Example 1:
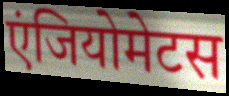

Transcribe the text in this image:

एंजियोमेटस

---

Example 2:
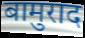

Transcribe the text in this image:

बामुराद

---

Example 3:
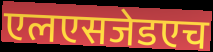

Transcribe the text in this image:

एलएसजेडएच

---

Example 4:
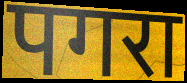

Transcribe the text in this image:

पगरा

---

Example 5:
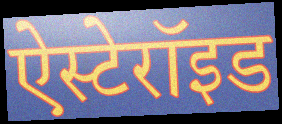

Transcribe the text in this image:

ऐस्टेरॉइड